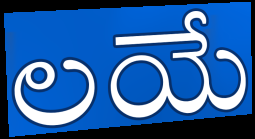
లయే